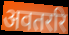
अवतररि